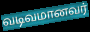
வடிவமானவர்